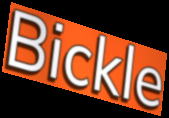
Bickle